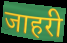
जाहरी